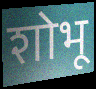
शोभू